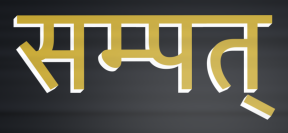
सम्पत्